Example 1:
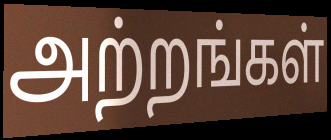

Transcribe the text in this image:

அற்றங்கள்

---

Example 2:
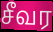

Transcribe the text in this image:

சீவர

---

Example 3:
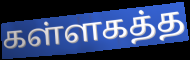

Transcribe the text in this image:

கள்ளகத்த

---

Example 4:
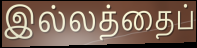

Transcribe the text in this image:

இல்லத்தைப்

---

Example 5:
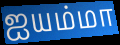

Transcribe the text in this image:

ஐயம்மா